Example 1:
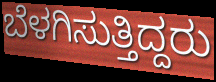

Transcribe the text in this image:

ಬೆಳಗಿಸುತ್ತಿದ್ದರು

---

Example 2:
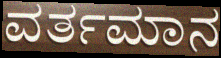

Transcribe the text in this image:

ವರ್ತಮಾನ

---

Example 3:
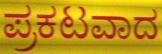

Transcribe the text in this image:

ಪ್ರಕಟವಾದ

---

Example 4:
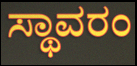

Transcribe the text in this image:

ಸ್ಥಾವರಂ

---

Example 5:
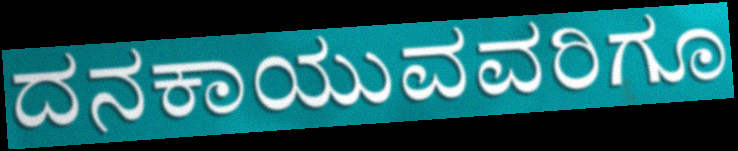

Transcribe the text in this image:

ದನಕಾಯುವವರಿಗೂ